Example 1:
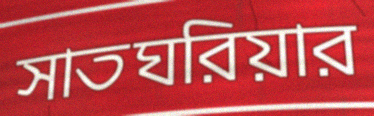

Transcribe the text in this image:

সাতঘরিয়ার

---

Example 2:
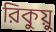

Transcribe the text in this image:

রিকুয়ু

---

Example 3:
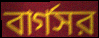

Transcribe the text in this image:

বার্গসর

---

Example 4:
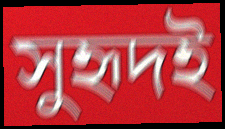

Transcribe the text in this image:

সুহৃদই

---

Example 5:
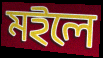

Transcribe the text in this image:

মইলে